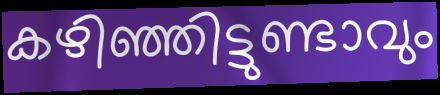
കഴിഞ്ഞിട്ടുണ്ടാവും